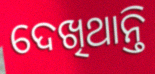
ଦେଖିଥାନ୍ତି